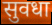
सुवधा